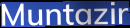
Muntazir